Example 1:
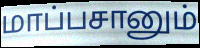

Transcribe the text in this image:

மாப்பசானும்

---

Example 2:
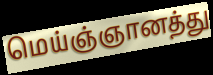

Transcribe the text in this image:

மெய்ஞ்ஞானத்து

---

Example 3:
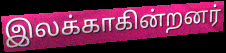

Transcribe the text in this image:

இலக்காகின்றனர்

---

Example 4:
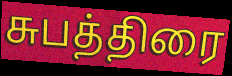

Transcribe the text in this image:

சுபத்திரை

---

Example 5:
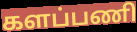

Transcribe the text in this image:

களப்பணி